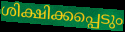
ശിക്ഷിക്കപ്പെടും